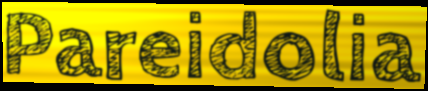
Pareidolia